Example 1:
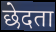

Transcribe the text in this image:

छेदता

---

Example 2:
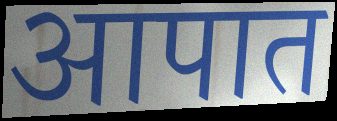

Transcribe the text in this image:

आपात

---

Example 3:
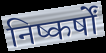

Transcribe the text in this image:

निष्कर्षों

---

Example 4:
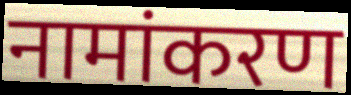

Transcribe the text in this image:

नामांकरण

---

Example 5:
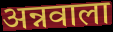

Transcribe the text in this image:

अन्नवाला